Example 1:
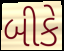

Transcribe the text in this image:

બીકે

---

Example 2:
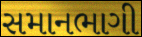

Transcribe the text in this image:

સમાનભાગી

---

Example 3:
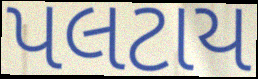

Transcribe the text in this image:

પલટાય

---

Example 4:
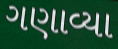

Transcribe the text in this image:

ગણાવ્યા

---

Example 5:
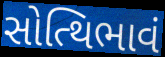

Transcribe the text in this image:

સોત્થિભાવં